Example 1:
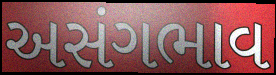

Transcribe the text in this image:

અસંગભાવ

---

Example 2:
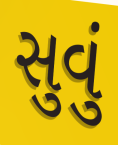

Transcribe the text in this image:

સુવું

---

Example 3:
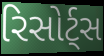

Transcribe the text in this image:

રિસોર્ટ્સ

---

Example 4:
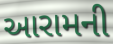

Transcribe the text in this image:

આરામની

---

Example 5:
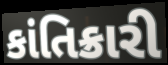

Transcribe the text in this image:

કાંતિક્રારી